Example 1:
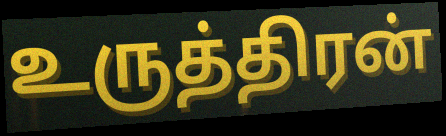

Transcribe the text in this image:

உருத்திரன்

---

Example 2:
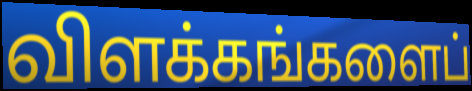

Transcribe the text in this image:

விளக்கங்களைப்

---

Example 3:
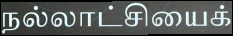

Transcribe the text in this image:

நல்லாட்சியைக்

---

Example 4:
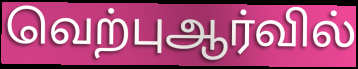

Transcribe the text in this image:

வெற்புஆர்வில்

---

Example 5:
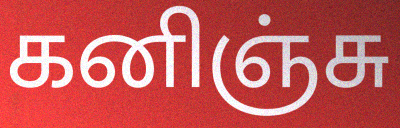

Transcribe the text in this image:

கனிஞ்சு